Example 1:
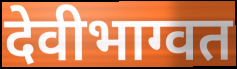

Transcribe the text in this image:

देवीभाग्वत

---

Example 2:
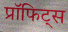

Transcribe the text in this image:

प्रॉफिट्स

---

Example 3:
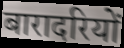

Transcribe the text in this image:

बारादरियों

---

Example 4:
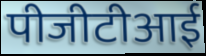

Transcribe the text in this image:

पीजीटीआई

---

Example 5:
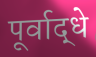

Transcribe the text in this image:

पूर्वाद्धे